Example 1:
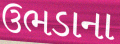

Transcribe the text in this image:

ઉભડાના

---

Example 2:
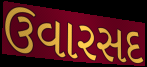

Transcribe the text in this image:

ઉવારસદ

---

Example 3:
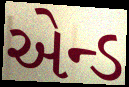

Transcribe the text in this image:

એન્ડ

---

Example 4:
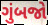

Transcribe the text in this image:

ગુંબજો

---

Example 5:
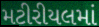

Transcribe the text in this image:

મટીરીયલમાં